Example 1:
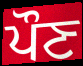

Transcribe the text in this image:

ਪੌਣ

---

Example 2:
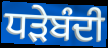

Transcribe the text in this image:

ਧੜੇਬੰਦੀ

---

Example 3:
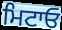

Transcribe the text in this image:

ਮਿਟਾਓ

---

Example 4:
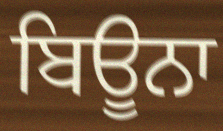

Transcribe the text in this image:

ਬਿਊਨਾ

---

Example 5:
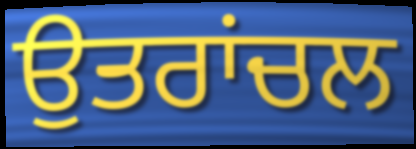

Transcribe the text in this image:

ਉਤਰਾਂਚਲ